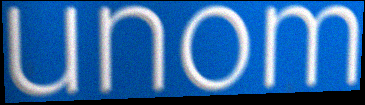
unom